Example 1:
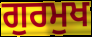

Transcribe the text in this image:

ਗੁਰਮੁਖ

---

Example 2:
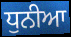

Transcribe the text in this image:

ਧੁਨੀਆ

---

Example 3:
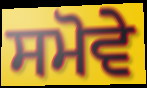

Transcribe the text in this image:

ਸਮੋਵੇ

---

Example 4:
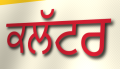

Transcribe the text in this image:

ਕਲੱਟਰ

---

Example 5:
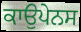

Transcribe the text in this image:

ਕਾਉਪੇਨਸ